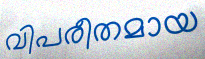
വിപരീതമായ